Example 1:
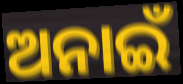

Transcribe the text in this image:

ଅନାଇଁ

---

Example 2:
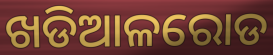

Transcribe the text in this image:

ଖଡିଆଳରୋଡ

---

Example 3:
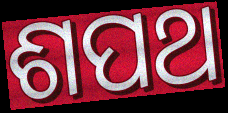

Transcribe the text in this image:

ଶପଥ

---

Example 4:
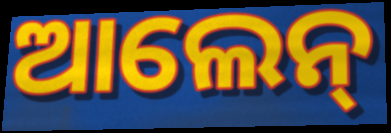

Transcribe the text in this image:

ଆଲେନ୍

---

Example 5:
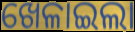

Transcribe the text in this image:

ଖେଳାଇଲା